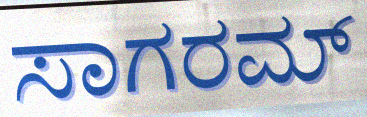
ಸಾಗರಮ್